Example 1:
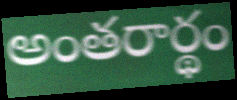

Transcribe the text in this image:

అంతరార్థం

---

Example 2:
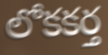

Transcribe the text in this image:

లోకకర్త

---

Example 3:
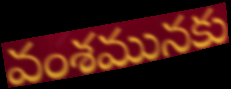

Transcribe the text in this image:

వంశమునకు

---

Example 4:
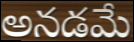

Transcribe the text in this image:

అనడమే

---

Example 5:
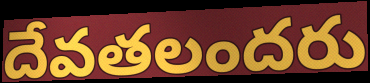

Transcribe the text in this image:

దేవతలందరు